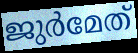
ജുർമേത്